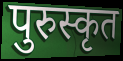
पुरुस्कृत